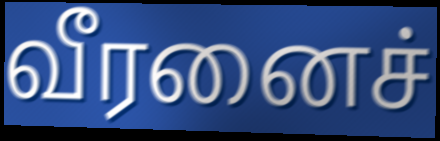
வீரனைச்